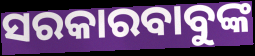
ସରକାରବାବୁଙ୍କ